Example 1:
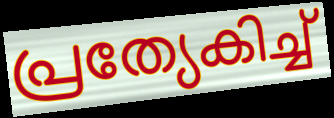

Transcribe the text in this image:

പ്രത്യേകിച്ച്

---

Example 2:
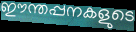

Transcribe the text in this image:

ഈന്തപ്പനകളുടെ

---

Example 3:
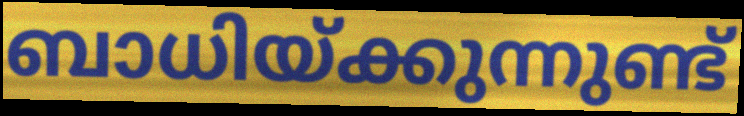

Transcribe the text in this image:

ബാധിയ്ക്കുന്നുണ്ട്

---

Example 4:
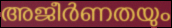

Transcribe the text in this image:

അജീർണതയും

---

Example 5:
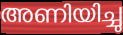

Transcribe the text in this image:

അണിയിച്ചു